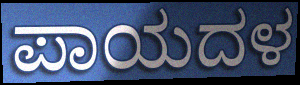
ಪಾಯದಳ